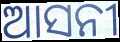
ଆସନୀ